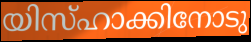
യിസ്ഹാക്കിനോടു